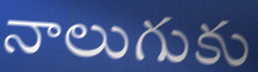
నాలుగుకు